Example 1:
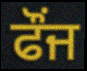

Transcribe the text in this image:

ਫੌਂਜ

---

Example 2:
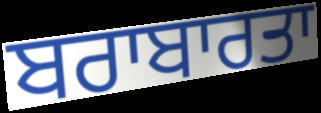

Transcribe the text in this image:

ਬਰਾਬਾਰਤਾ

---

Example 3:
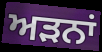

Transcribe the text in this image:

ਅੜਨਾਂ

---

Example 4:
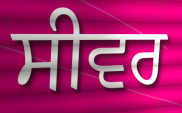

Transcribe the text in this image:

ਸੀਵਰ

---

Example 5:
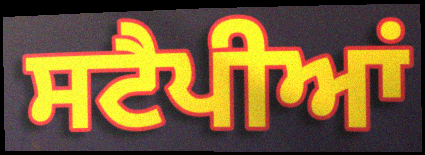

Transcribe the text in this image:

ਸਟੈਪੀਆਂ